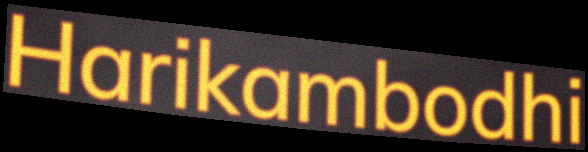
Harikambodhi